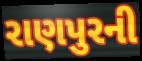
રાણપુરની